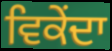
ਵਿਕੇਂਦਾ